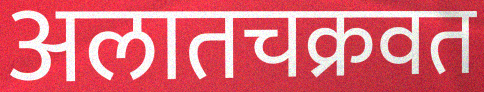
अलातचक्रवत